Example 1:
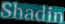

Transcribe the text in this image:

Shadin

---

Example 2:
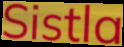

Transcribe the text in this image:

Sistla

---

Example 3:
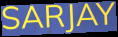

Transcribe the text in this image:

SARJAY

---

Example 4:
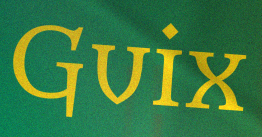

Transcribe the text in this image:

Guix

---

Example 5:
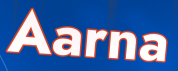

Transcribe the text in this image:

Aarna